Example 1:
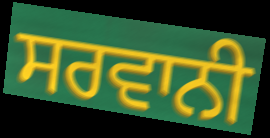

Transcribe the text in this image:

ਸਰਵਾਨੀ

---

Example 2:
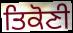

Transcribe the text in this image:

ਤਿਕੋਣੀ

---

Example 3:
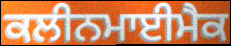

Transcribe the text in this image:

ਕਲੀਨਮਾਈਮੈਕ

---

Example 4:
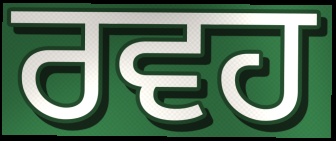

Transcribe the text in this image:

ਰਵਹ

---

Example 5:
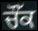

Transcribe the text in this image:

ਚੌੱਕ